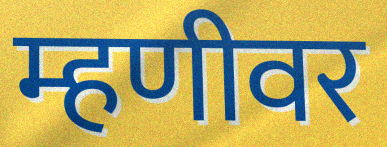
म्हणीवर